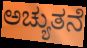
ಅಚ್ಯುತನೆ